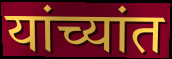
यांच्यांत